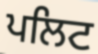
ਪਲਿਟ